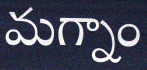
మగ్నాం